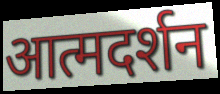
आत्मदर्शन